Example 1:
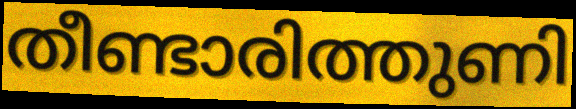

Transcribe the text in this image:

തീണ്ടാരിത്തുണി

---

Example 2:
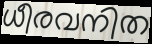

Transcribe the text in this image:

ധീരവനിത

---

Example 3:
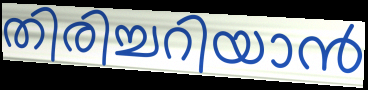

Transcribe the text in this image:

തിരിച്ചറിയാൻ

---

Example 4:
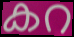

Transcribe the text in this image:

കറ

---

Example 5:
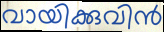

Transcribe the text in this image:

വായിക്കുവിൻ